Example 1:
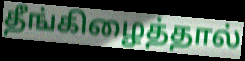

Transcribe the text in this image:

தீங்கிழைத்தால்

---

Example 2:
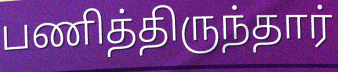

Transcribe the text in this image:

பணித்திருந்தார்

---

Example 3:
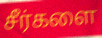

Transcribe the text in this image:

சீர்களை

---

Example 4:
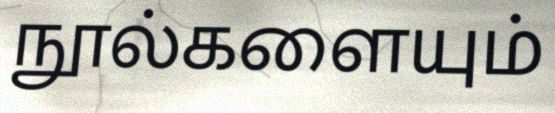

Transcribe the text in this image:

நூல்களையும்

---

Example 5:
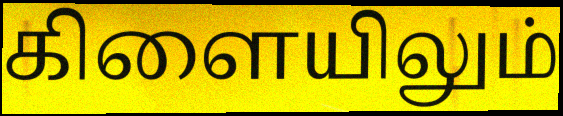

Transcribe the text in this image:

கிளையிலும்